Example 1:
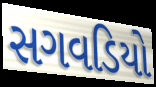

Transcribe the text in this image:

સગવડિયો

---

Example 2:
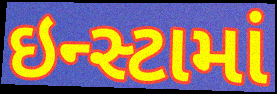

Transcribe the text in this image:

ઇન્સ્ટામાં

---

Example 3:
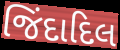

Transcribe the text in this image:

જિંદાદિલ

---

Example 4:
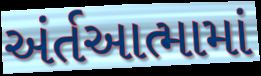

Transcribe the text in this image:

અંર્તઆત્મામાં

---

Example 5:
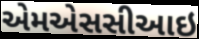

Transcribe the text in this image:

એમએસસીઆઇ